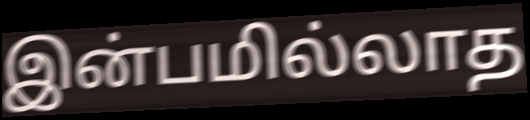
இன்பமில்லாத